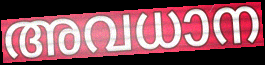
അവധാന